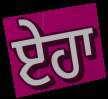
ਏਹਾ